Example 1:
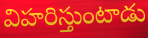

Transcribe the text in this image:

విహరిస్తుంటాడు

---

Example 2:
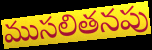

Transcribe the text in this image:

ముసలితనపు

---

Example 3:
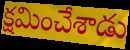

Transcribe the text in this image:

క్షమించేశాడు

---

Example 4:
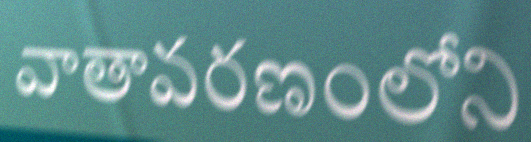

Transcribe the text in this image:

వాతావరణంలోని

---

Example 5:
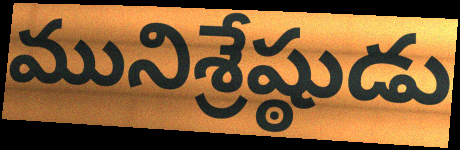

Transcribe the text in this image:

మునిశ్రేష్ఠుడు